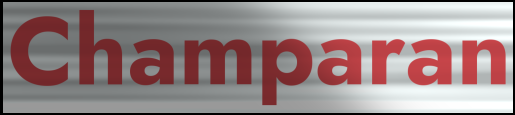
Champaran